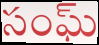
సంఘ్